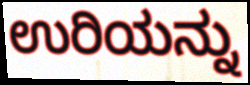
ಉರಿಯನ್ನು